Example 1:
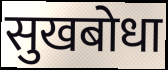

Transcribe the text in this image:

सुखबोधा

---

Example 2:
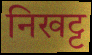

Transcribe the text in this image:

निखट्ट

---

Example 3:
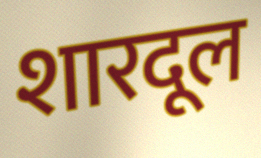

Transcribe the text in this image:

शारदूल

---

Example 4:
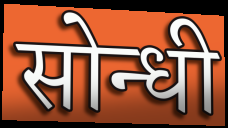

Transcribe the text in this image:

सोन्धी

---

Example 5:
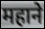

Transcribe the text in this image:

महाने